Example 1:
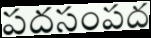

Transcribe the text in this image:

పదసంపద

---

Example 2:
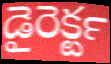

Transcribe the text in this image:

డైరెక్టర్‍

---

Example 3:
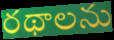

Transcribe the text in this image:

రథాలను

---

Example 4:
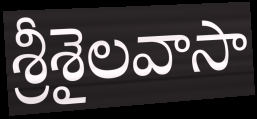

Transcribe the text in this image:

శ్రీశైలవాసా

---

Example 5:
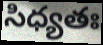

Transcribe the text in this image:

సిధ్యతః